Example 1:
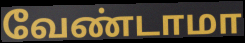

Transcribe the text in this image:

வேண்டாமா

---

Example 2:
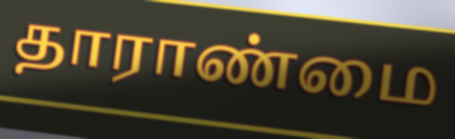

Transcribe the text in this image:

தாராண்மை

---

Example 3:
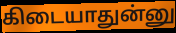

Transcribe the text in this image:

கிடையாதுன்னு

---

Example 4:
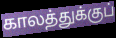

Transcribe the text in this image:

காலத்துக்குப்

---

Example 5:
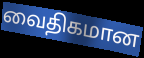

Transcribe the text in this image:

வைதிகமான